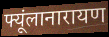
फ्यूंलानारायण